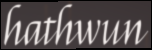
hathwun